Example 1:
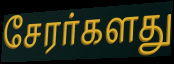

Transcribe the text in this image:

சேரர்களது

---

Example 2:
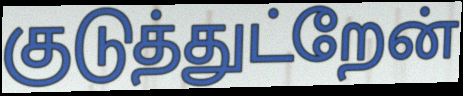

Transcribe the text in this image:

குடுத்துட்றேன்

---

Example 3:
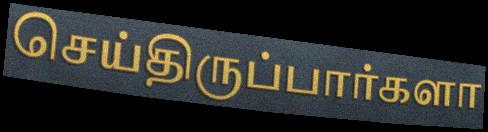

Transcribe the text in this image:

செய்திருப்பார்களா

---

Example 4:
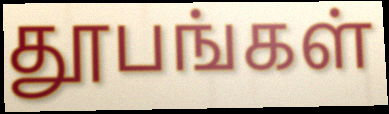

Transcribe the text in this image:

தூபங்கள்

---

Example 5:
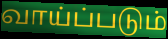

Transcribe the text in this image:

வாய்ப்படும்